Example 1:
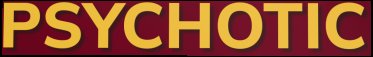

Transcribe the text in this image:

PSYCHOTIC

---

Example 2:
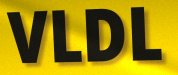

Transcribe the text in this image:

VLDL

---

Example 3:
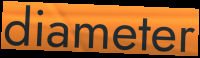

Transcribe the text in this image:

diameter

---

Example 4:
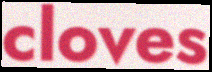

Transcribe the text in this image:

cloves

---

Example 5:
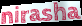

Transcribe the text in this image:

nirasha